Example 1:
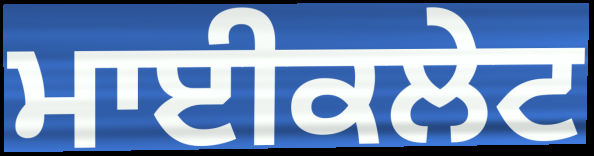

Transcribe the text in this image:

ਮਾਈਕਲੇਟ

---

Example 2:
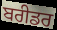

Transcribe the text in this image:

ਬਰੀਡਰ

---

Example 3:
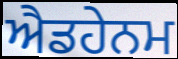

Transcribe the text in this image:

ਐਡਹੇਨਮ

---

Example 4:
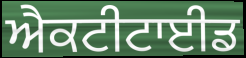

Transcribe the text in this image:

ਐਕਟੀਟਾਈਡ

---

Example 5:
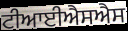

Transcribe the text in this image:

ਟੀਆਈਐਸਐਸ